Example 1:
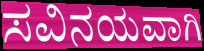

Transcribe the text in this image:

ಸವಿನಯವಾಗಿ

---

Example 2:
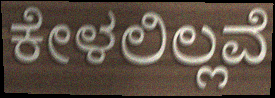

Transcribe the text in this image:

ಕೇಳಲಿಲ್ಲವೆ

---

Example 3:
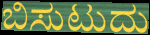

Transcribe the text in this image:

ಬಿಸುಟುದು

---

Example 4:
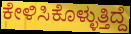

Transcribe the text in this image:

ಕೇಳಿಸಿಕೊಳ್ಳುತ್ತಿದ್ದೆ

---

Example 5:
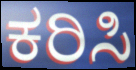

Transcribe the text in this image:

ಕರಿಸಿ